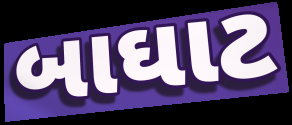
બાઘાટ